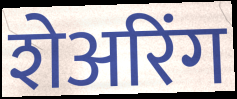
शेअरिंग